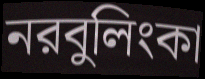
নরবুলিংকা